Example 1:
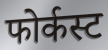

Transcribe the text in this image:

फोर्कस्ट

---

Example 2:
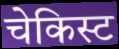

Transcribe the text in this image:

चेकिस्ट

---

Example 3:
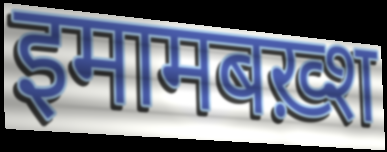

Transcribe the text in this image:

इमामबख़्श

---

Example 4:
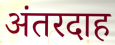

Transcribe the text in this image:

अंतरदाह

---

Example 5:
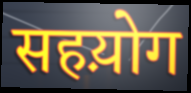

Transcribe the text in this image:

सहय़ोग